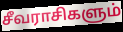
சீவராசிகளும்